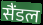
सैंडल